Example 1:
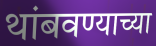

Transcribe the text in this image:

थांबवण्याच्या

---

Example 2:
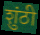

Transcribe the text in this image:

शुंठी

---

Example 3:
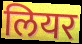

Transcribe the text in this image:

लियर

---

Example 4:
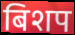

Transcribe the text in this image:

बिशप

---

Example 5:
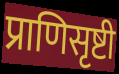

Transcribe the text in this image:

प्राणिसृष्टी